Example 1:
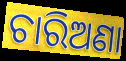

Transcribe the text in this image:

ଚାରିଅଣା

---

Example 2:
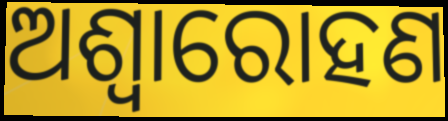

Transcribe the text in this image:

ଅଶ୍ୱାରୋହଣ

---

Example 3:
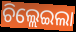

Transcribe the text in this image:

ଚିଲ୍ଲେଇଲା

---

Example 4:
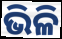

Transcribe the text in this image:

ଭିଳି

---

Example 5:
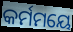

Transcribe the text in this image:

କର୍ମମୟେ